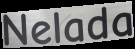
Nelada